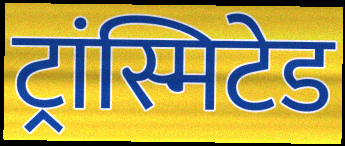
ट्रांस्मिटेड